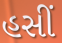
હસીં